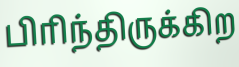
பிரிந்திருக்கிற